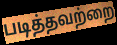
படித்தவற்றை